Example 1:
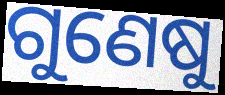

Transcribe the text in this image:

ଗୁଣେଷୁ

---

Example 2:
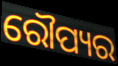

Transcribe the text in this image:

ରୌପ୍ୟର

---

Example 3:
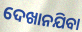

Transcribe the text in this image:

ଦେଖାନଯିବା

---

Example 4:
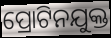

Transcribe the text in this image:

ପ୍ରୋଟିନଯୁକ୍ତ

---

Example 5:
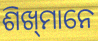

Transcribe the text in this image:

ଶିଖ୍‌ମାନେ